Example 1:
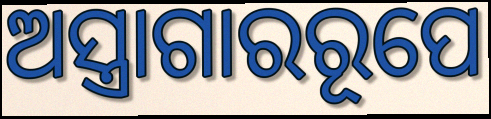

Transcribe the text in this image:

ଅସ୍ତ୍ରାଗାରରୂପେ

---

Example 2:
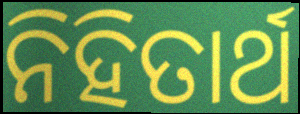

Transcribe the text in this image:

ନିହିତାର୍ଥ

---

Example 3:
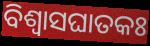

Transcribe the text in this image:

ବିଶ୍ୱାସଘାତକଃ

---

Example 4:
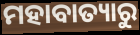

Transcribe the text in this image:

ମହାବାତ୍ୟାରୁ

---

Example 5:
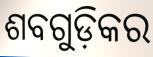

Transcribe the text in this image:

ଶବଗୁଡ଼ିକର